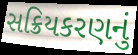
સક્રિયકરણનું